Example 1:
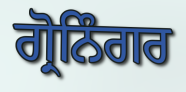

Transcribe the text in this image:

ਗ੍ਰੋਨਿੰਗਰ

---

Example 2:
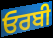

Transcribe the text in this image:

ਓਰਬੀ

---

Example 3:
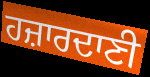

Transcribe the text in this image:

ਹਜ਼ਾਰਦਾਣੀ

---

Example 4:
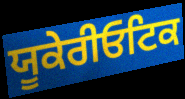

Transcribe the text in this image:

ਯੂਕੇਰੀਓਟਿਕ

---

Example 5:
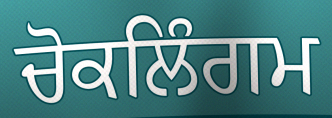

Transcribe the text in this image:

ਚੋਕਲਿੰਗਮ